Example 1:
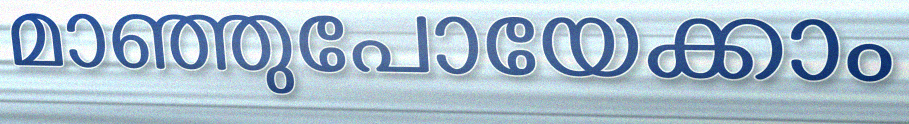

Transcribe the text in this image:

മാഞ്ഞുപോയേക്കാം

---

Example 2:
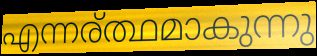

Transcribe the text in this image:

എന്നര്ത്ഥമാകുന്നു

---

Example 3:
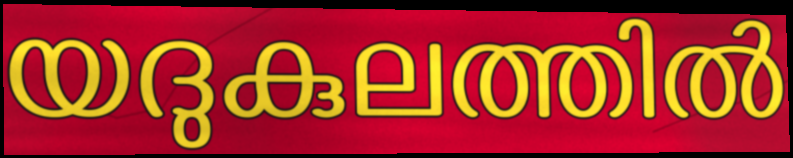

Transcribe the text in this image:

യദുകുലത്തിൽ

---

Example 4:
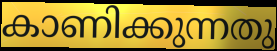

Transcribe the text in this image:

കാണിക്കുന്നതു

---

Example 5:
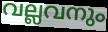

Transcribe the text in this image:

വല്ലവനും